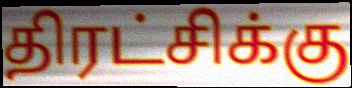
திரட்சிக்கு